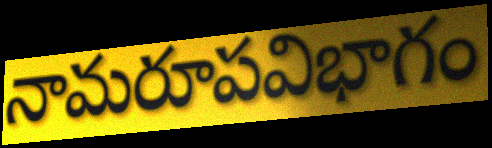
నామరూపవిభాగం